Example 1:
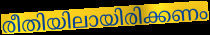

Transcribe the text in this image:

രീതിയിലായിരിക്കണം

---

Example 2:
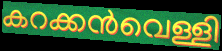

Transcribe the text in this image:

കറക്കൻവെള്ളി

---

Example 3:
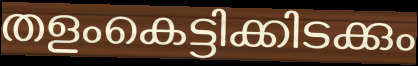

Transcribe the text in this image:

തളംകെട്ടിക്കിടക്കും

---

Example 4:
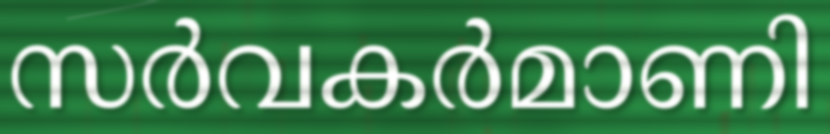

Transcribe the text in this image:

സർവകർമാണി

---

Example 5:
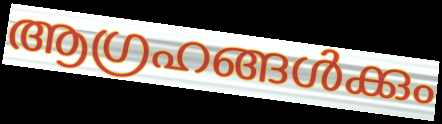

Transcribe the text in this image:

ആഗ്രഹങ്ങൾക്കും